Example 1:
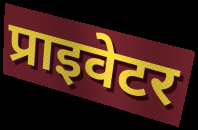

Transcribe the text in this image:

प्राइवेटर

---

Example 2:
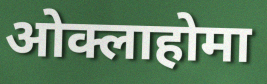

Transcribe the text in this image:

ओक्लाहोमा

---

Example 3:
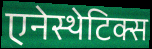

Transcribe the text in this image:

एनेस्थेटिक्स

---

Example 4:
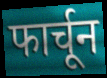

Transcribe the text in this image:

फार्चून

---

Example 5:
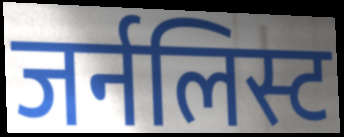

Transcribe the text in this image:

जर्नलिस्ट